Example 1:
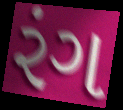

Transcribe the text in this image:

રંગ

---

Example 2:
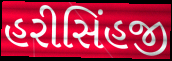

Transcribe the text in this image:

હરીસિંહજી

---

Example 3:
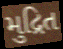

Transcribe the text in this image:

મુદ્રિત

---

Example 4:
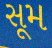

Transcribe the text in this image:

સૂમ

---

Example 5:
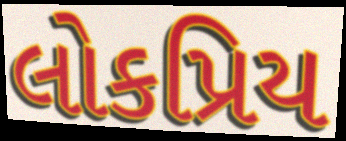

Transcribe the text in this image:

લોકપ્રિય